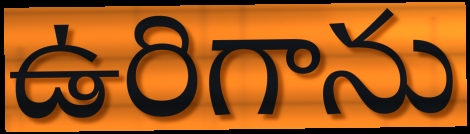
ఉరిగాను